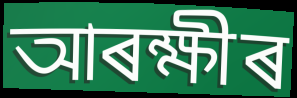
আৰক্ষীৰ